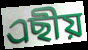
এছীয়